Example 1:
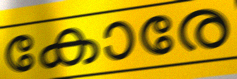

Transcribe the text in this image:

കോരേ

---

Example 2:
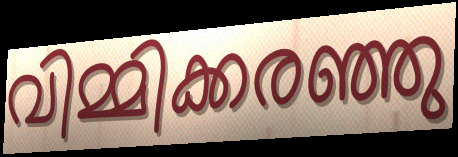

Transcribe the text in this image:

വിമ്മിക്കരഞ്ഞു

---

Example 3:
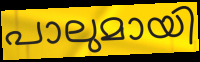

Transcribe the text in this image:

പാലുമായി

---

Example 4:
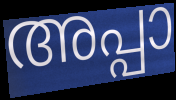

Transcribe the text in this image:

അപ്പാ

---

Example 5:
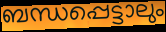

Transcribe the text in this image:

ബന്ധപ്പെട്ടാലും